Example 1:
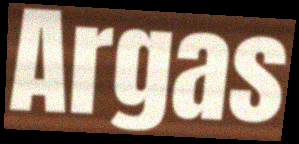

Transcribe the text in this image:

Argas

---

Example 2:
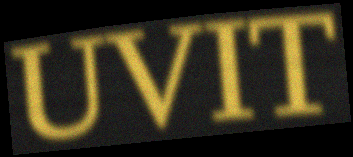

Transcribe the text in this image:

UVIT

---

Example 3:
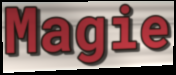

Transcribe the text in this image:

Magie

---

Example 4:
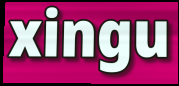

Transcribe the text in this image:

xingu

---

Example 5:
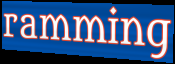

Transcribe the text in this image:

ramming